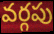
వర్గపు